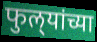
फुल्यांच्या